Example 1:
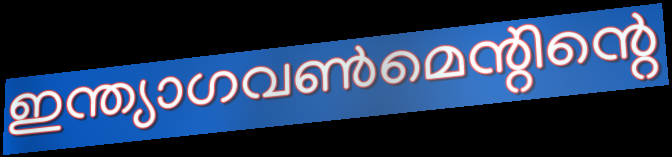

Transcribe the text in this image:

ഇന്ത്യാഗവൺമെന്റിന്റെ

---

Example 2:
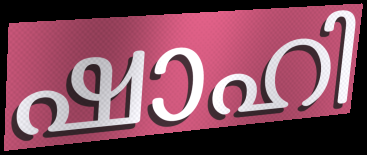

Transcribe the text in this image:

ഷാഹി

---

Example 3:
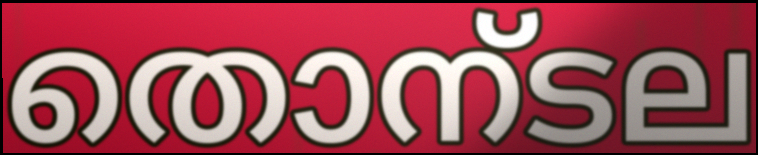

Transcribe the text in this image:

തൊന്ടല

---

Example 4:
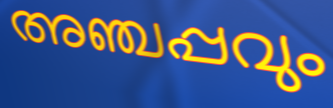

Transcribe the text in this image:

അഞ്ചപ്പവും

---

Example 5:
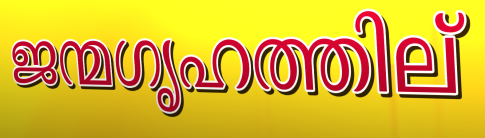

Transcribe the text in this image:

ജന്മഗൃഹത്തില്